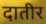
दातीर